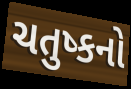
ચતુષ્કનો